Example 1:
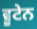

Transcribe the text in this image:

ਵੂਟੇਨ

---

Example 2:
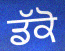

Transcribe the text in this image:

ਡੱਕੋ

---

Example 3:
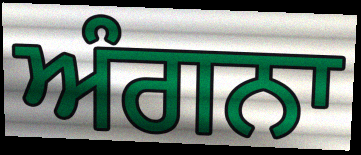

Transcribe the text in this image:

ਅੰਗਨਾ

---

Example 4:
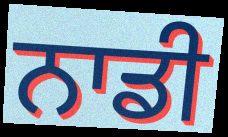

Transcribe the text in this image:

ਨਾਡੀ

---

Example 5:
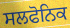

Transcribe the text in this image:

ਸਲਫੋਨਿਕ